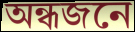
অন্ধজনে